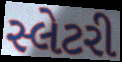
સ્લેટરી